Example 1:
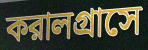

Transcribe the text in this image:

করালগ্রাসে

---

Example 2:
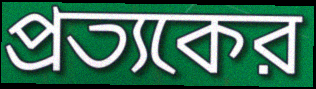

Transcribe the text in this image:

প্রত্যকের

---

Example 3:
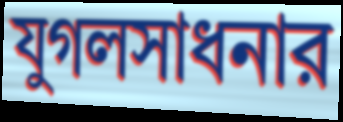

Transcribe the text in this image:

যুগলসাধনার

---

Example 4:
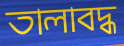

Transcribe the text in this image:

তালাবদ্ধ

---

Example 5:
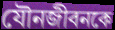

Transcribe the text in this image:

যৌনজীবনকে